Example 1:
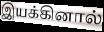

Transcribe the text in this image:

இயக்கினால்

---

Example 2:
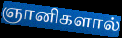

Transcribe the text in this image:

ஞானிகளால்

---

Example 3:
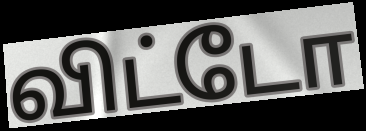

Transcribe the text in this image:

விட்டோ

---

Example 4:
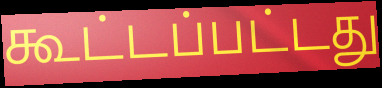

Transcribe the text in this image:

கூட்டப்பட்டது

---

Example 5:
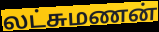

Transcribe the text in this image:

லட்சுமணன்